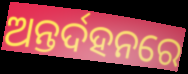
ଅନ୍ତର୍ଦହନରେ